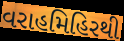
વરાહમિહિરથી